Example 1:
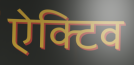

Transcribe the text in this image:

ऐक्टिव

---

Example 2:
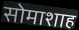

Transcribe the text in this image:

सोमाशाह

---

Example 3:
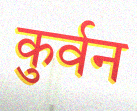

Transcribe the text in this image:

कुर्वन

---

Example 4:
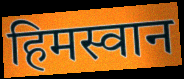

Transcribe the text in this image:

हिमस्वान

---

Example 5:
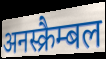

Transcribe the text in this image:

अनस्क्रैम्बल